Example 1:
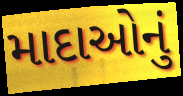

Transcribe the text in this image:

માદાઓનું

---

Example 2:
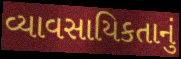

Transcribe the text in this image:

વ્યાવસાયિકતાનું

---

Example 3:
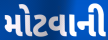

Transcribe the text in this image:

મોટવાની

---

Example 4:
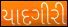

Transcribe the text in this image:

યાદગીરી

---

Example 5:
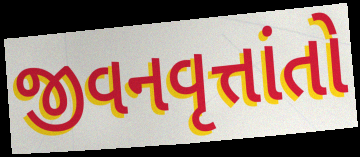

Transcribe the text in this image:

જીવનવૃત્તાંતો